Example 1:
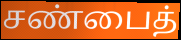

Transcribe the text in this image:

சண்பைத்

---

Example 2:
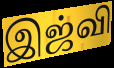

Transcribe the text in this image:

இஜ்வி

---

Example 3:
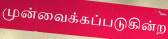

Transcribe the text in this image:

முன்வைக்கப்படுகின்ற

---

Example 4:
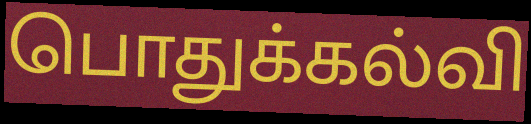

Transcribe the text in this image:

பொதுக்கல்வி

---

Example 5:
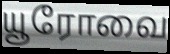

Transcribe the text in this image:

யூரோவை